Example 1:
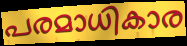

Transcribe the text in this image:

പരമാധികാര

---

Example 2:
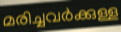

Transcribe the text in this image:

മരിച്ചവർക്കുള്ള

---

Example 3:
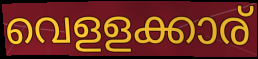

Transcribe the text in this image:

വെളളക്കാര്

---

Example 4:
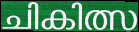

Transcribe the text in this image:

ചികിത്സ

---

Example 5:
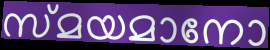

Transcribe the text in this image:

സ്മയമാനോ